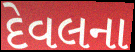
દેવલના